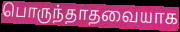
பொருந்தாதவையாக